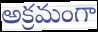
అక్రమంగా